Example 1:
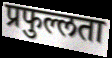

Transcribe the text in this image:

प्रफुल्लता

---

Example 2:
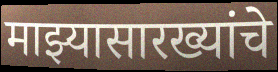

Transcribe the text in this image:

माझ्यासारख्यांचे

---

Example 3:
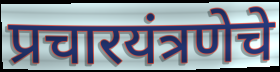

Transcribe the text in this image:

प्रचारयंत्रणेचे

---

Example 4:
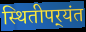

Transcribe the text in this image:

स्थितीपर्यंत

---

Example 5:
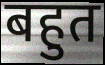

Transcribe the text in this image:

बहुत